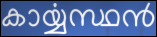
കാൎയ്യസ്ഥൻ